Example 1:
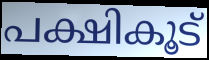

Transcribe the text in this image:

പക്ഷികൂട്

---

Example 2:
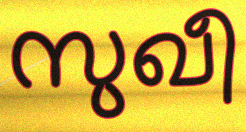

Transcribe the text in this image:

സുഖീ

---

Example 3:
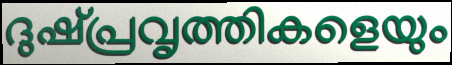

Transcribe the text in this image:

ദുഷ്പ്രവൃത്തികളെയും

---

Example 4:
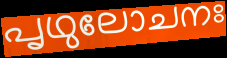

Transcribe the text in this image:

പൃഥുലോചനഃ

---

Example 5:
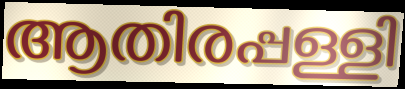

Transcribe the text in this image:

ആതിരപ്പള്ളി